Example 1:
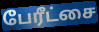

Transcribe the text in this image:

பேரீட்சை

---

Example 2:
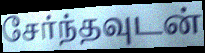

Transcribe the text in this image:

சேர்ந்தவுடன்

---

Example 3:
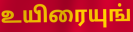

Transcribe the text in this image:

உயிரையுங்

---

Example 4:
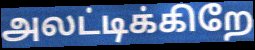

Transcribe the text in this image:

அலட்டிக்கிறே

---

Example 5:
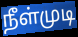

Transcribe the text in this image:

நீள்முடி